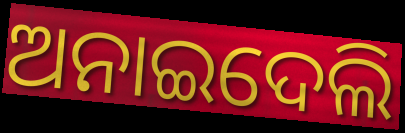
ଅନାଇଦେଲି